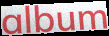
album